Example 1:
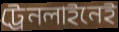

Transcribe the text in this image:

ট্রেনলাইনেই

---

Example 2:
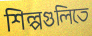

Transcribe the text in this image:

শিল্পগুলিতে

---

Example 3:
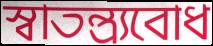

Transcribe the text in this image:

স্বাতন্ত্র্যবোধ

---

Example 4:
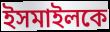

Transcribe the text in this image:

ইসমাইলকে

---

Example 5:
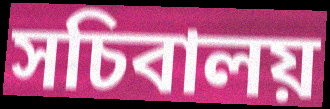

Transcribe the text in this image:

সচিবালয়